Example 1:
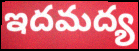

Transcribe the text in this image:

ఇదమద్య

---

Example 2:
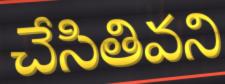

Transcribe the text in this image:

చేసితివని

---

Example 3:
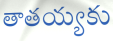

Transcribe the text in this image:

తాతయ్యకు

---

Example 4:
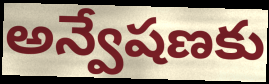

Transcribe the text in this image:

అన్వేషణకు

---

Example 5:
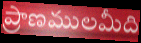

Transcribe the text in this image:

ప్రాణములమీది